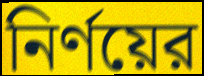
নির্ণয়ের